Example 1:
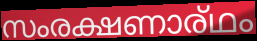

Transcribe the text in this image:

സംരക്ഷണാര്ഥം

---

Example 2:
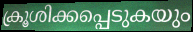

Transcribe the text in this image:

ക്രൂശിക്കപ്പെടുകയും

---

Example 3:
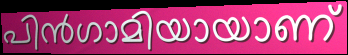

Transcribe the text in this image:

പിൻഗാമിയായാണ്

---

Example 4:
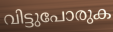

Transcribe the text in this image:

വിട്ടുപോരുക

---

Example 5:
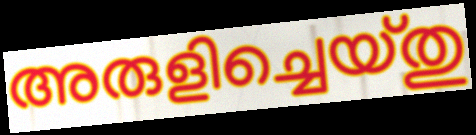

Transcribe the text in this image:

അരുളിച്ചെയ്തു